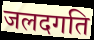
जलदगति